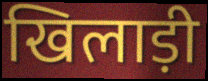
खिलाड़ी